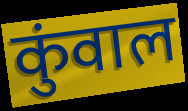
कुंवाल